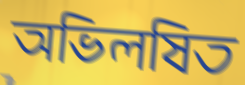
অভিলষিত